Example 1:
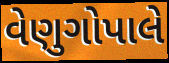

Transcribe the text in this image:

વેણુગોપાલે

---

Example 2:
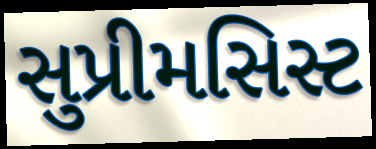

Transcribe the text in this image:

સુપ્રીમસિસ્ટ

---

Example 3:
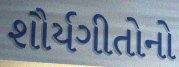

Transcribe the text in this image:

શૌર્યગીતોનો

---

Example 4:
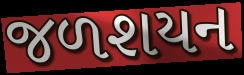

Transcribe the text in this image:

જળશયન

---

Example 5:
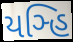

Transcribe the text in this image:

યઞ્હિ